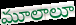
మూలాలూ